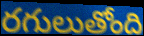
రగులుతోంది